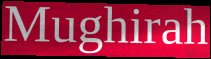
Mughirah